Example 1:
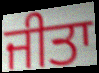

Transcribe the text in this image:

ਜੀਤਾ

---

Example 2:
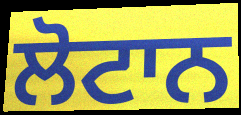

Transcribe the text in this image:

ਲੋਟਾਨ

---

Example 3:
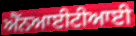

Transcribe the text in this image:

ਐੱਨਆਈਟੀਆਈ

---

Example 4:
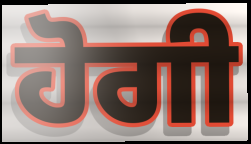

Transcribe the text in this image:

ਹੋਗੀ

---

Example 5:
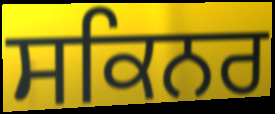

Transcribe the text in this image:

ਸਕਿਨਰ